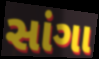
સાંગા